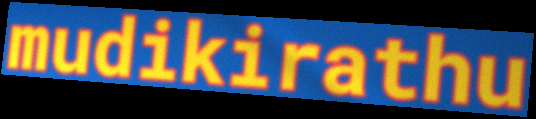
mudikirathu